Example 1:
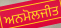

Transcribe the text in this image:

ਅਨਮੋਲਜੀਤ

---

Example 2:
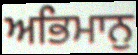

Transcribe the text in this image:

ਅਭਿਮਾਨੁ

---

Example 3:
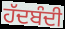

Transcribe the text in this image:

ਹੱਦਬੰਦੀ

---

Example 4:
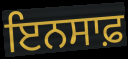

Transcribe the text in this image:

ਇਨਸਾਫ਼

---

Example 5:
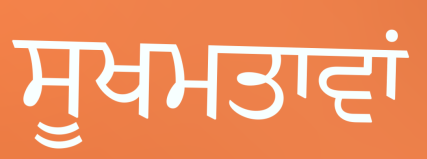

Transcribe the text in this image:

ਸੂਖਮਤਾਵਾਂ